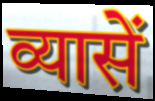
व्यासें